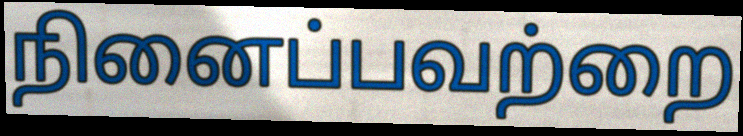
நினைப்பவற்றை